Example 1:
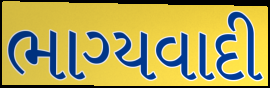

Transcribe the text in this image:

ભાગ્યવાદી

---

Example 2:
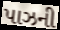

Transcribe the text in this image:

પાઝની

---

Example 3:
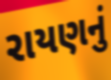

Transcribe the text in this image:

રાયણનું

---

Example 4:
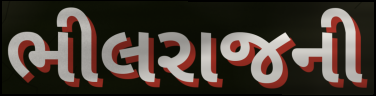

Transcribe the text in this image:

ભીલરાજની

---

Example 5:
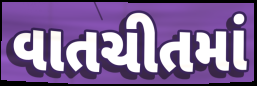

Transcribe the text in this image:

વાતચીતમાં